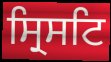
ਸ੍ਰਿਸਟਿ